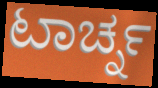
ಟಾರ್ಚ್ನ